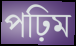
পঢ়িম